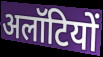
अलॉटियों